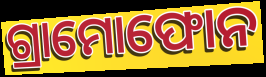
ଗ୍ରାମୋଫୋନ